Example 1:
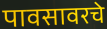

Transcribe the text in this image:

पावसावरचे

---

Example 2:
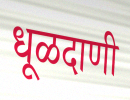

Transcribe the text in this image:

धूळदाणी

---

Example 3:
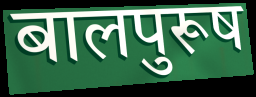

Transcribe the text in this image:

बालपुरूष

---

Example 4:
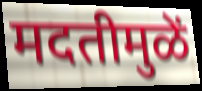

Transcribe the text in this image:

मदतीमुळें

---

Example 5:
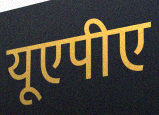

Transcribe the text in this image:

यूएपीए